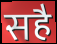
सहै